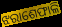
ଝରାଶେଫାଳି